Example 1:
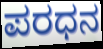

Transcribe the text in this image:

ಪರಧನ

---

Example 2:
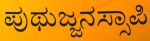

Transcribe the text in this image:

ಪುಥುಜ್ಜನಸ್ಸಾಪಿ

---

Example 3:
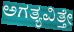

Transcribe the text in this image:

ಅಗತ್ಯವಿತ್ತೇ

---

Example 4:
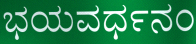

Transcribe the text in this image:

ಭಯವರ್ಧನಂ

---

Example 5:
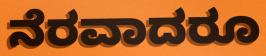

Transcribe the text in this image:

ನೆರವಾದರೂ